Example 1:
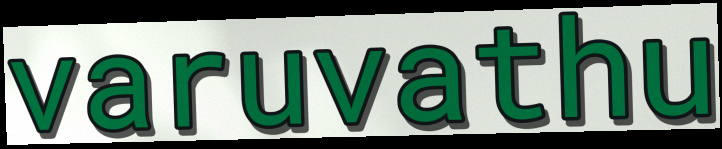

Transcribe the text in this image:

varuvathu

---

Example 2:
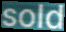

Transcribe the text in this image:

sold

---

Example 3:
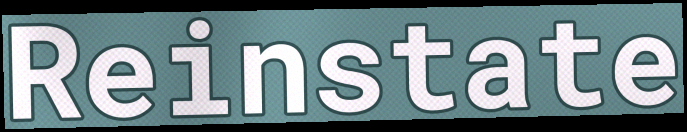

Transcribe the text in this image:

Reinstate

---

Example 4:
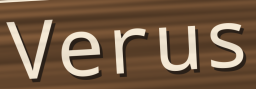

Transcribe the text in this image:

Verus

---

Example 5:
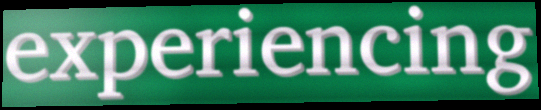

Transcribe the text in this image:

experiencing